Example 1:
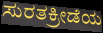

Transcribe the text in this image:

ಸುರತಕ್ರೀಡೆಯ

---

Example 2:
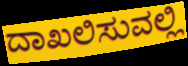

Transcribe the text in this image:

ದಾಖಲಿಸುವಲ್ಲಿ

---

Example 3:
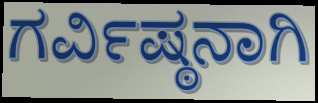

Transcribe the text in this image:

ಗರ್ವಿಷ್ಠನಾಗಿ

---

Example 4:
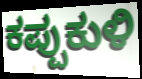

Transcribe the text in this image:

ಕಪ್ಪುಕುಳಿ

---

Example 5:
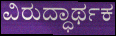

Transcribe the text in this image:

ವಿರುದ್ಧಾರ್ಥಕ